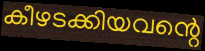
കീഴടക്കിയവന്റെ